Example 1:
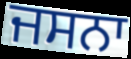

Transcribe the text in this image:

ਜਸਨਾ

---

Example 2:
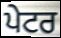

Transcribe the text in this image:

ਪੇਟਰ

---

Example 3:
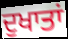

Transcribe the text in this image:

ਦੁਖਾਤਾਂ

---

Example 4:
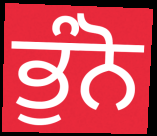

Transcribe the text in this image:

ਭੁੰਨੋ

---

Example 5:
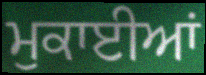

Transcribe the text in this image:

ਮੁਕਾਈਆਂ